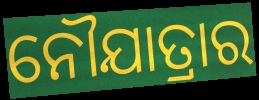
ନୌଯାତ୍ରାର